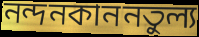
নন্দনকাননতুল্য